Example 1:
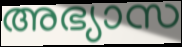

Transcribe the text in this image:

അഭ്യാസ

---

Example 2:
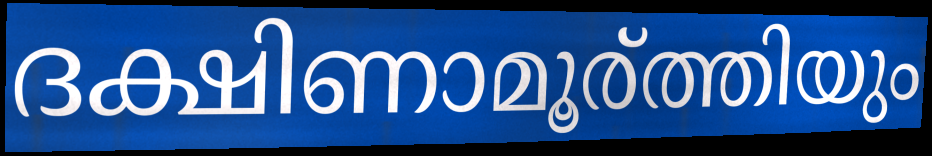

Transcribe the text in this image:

ദക്ഷിണാമൂര്ത്തിയും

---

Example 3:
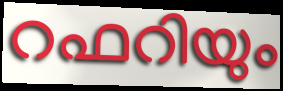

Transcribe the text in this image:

റഫറിയും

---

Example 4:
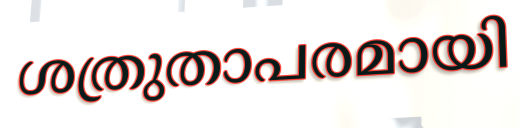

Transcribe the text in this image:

ശത്രുതാപരമായി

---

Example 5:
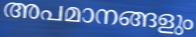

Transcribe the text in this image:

അപമാനങ്ങളും